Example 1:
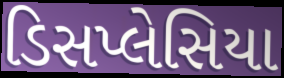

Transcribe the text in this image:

ડિસપ્લેસિયા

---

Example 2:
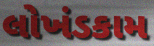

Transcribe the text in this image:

લોખંડકામ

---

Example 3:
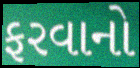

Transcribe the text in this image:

ફરવાનો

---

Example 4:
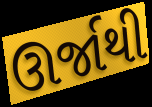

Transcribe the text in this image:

ઊર્જાથી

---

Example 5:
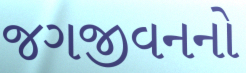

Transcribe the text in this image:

જગજીવનનો